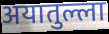
अयातुल्ला